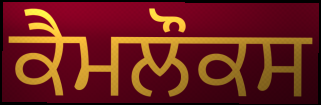
ਕੈਮਲੌਕਸ